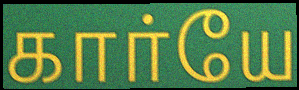
கார்யே